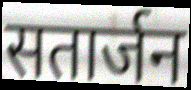
सतार्जन